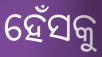
ହେଁସକୁ